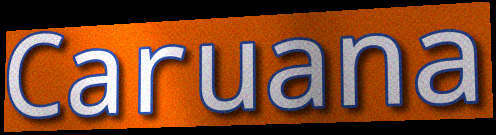
Caruana